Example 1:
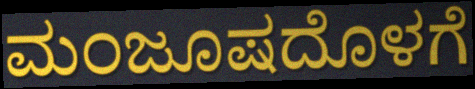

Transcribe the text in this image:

ಮಂಜೂಷದೊಳಗೆ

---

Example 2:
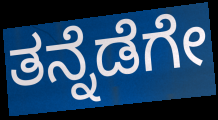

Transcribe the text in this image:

ತನ್ನೆಡೆಗೇ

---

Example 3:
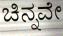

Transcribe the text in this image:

ಚಿನ್ನವೇ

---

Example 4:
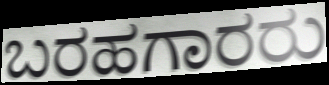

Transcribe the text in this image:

ಬರಹಗಾರರು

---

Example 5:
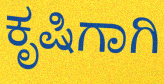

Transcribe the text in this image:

ಕೃಷಿಗಾಗಿ